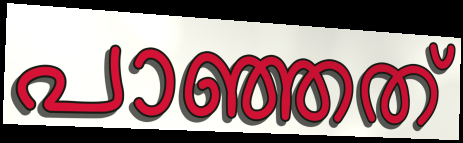
പാഞ്ഞത്